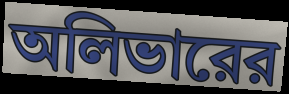
অলিভারের